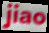
jiao